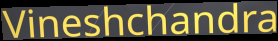
Vineshchandra